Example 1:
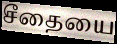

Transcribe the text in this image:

சீதையை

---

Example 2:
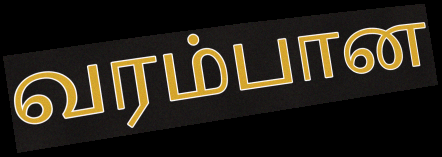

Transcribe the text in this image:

வரம்பான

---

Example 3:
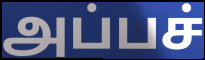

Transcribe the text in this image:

அப்பச்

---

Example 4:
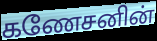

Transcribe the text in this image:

கணேசனின்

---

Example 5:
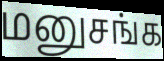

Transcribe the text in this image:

மனுசங்க